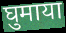
घुमाया